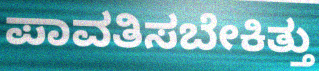
ಪಾವತಿಸಬೇಕಿತ್ತು